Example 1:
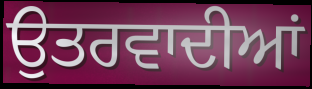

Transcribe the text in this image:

ਉਤਰਵਾਦੀਆਂ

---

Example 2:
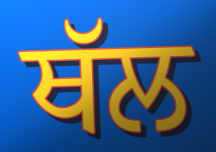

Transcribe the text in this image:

ਥੱਲ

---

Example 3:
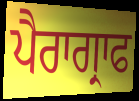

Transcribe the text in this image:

ਪੈਰਾਗ੍ਰਾਫ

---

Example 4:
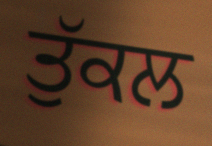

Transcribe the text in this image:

ਤੁੱਕਲ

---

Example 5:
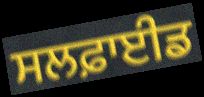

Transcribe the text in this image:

ਸਲਫ਼ਾਈਡ